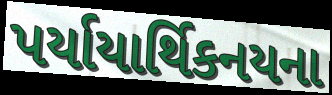
પર્યાયાર્થિકનયના